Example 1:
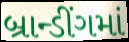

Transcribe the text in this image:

બ્રાન્ડીંગમાં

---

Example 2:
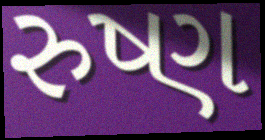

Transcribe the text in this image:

રુષ્ણ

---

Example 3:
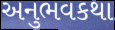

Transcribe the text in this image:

અનુભવકથા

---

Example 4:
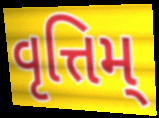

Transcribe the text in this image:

વૃત્તિમ્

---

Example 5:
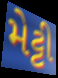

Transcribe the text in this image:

મેટ્ટી